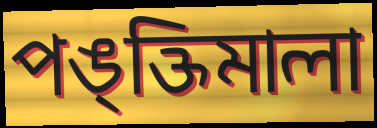
পঙ্‌ক্তিমালা